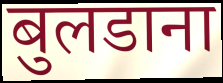
बुलडाना